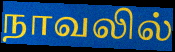
நாவலில்